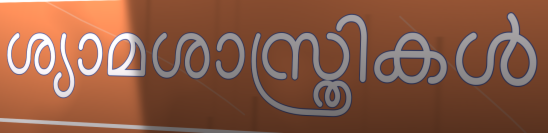
ശ്യാമശാസ്ത്രികൾ